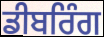
ਡੀਬਰਿੰਗ